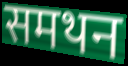
समथन